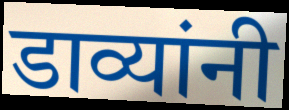
डाव्यांनी